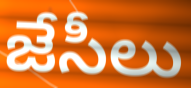
జేసీలు